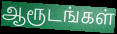
ஆரூடங்கள்